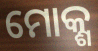
ମୋକ୍ଶ